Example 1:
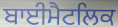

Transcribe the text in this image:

ਬਾਈਮੈਟਲਿਕ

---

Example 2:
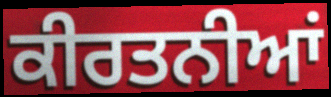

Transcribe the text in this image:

ਕੀਰਤਨੀਆਂ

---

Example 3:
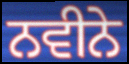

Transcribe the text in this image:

ਨਵੀਨੇ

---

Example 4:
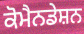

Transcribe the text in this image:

ਕੋਮੈਨਡੇਸ਼ਨ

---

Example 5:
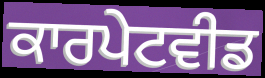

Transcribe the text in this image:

ਕਾਰਪੇਟਵੀਡ